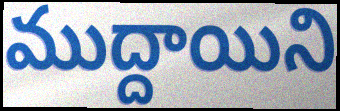
ముద్దాయిని